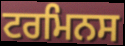
ਟਰਮਿਨਸ